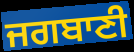
ਜਗਬਾਣੀ